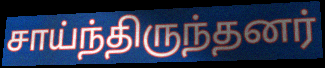
சாய்ந்திருந்தனர்